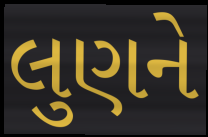
લુણને